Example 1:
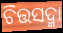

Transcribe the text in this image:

ଚିତ୍ତସଦ୍ମା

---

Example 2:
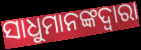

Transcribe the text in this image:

ସାଧୁମାନଙ୍କଦ୍ଵାରା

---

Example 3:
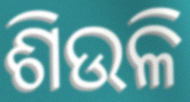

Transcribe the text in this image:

ଶିଉଳି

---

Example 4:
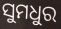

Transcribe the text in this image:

ସୁମଧୁର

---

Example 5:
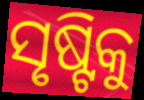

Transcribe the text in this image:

ସୃଷ୍ଟିକୁ